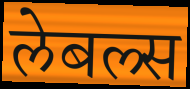
लेबल्स